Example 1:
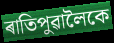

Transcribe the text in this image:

ৰাতিপুৱালৈকে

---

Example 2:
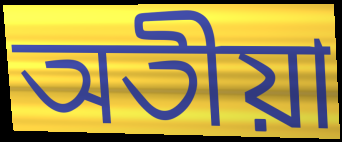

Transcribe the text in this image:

অতীয়া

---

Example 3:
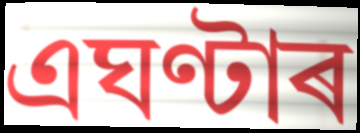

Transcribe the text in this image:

এঘণ্টাৰ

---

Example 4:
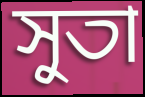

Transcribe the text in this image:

সুতা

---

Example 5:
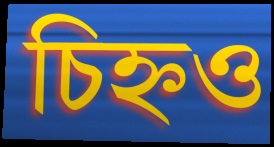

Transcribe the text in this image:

চিহ্নও